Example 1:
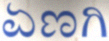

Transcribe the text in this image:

ಏಣಗಿ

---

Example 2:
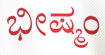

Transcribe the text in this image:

ಭೀಷ್ಮಂ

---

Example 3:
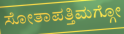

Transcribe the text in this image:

ಸೋತಾಪತ್ತಿಮಗ್ಗೋ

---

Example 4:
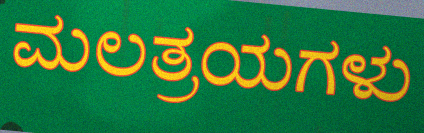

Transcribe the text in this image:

ಮಲತ್ರಯಗಳು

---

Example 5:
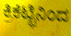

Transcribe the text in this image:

ಕ್ರಿಕೆಟ್ಟಿನಿಂದ